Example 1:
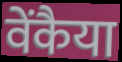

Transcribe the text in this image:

वेंकैया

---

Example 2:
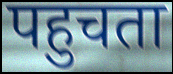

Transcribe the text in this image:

पहुचता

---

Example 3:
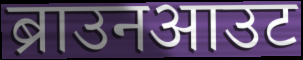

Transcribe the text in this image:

ब्राउनआउट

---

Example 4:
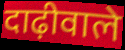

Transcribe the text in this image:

दाढ़ीवाले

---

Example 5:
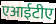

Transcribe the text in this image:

एआईटीए